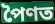
পৈণত